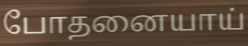
போதனையாய்